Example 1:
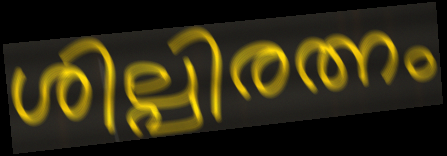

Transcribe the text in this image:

ശില്പിരത്നം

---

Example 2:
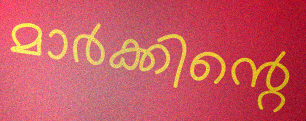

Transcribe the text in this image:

മാർക്കിന്റെ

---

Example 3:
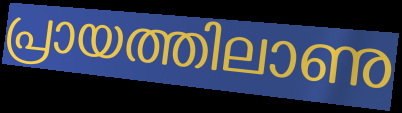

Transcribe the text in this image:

പ്രായത്തിലാണു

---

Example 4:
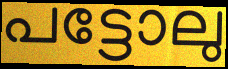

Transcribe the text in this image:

പട്ടോലു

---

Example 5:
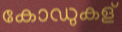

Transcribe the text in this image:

കോഡുകള്